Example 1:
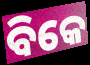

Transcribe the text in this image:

ବିକେ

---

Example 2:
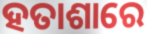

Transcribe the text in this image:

ହତାଶାରେ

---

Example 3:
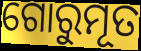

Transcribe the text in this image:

ଗୋରୁମୂତ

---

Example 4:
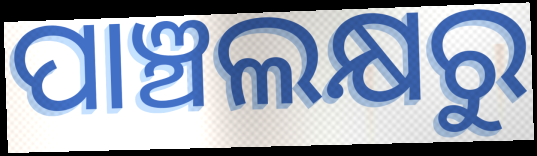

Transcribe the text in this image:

ପାଞ୍ଚଲକ୍ଷରୁ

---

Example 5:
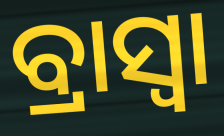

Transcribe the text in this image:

ବ୍ରାସ୍ବା